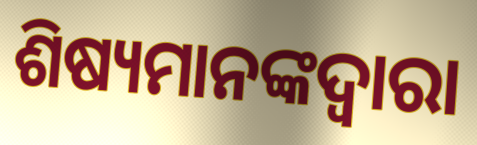
ଶିଷ୍ୟମାନଙ୍କଦ୍ୱାରା